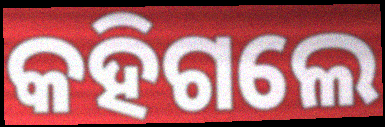
କହିଗଲେ